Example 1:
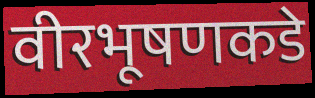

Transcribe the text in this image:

वीरभूषणकडे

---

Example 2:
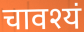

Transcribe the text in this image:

चावश्यं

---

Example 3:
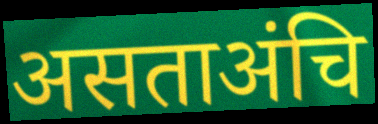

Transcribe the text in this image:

असताअंचि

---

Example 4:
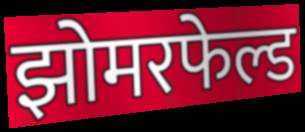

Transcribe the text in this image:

झोमरफेल्ड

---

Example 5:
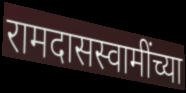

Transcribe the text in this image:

रामदासस्वामींच्या